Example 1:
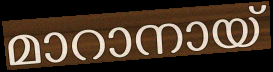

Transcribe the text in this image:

മാറാനായ്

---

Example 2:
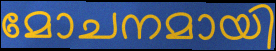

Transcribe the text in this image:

മോചനമായി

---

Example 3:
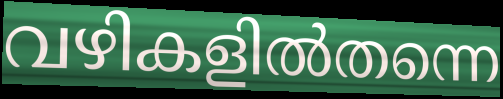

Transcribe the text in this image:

വഴികളിൽതന്നെ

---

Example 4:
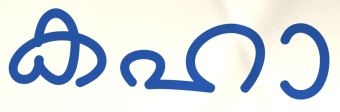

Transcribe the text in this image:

കഹാ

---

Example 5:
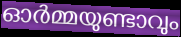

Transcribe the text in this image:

ഓർമ്മയുണ്ടാവും